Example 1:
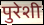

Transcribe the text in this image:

पुरेशी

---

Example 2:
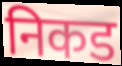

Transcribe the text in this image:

निकड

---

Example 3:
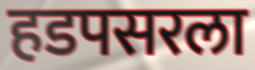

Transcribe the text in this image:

हडपसरला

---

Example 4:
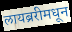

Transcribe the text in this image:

लायब्ररीमधून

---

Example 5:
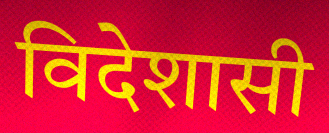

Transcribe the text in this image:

विदेशासी